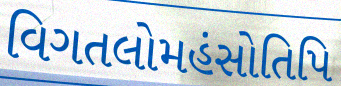
વિગતલોમહંસોતિપિ